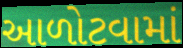
આળોટવામાં